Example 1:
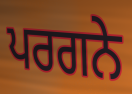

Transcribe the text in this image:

ਪਰਗਨੇ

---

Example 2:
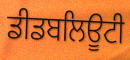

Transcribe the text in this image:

ਡੀਡਬਲਿਊਟੀ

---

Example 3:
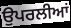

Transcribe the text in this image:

ਉਪਰਲੀਆਂ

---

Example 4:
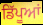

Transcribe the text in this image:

ਡਿੱਪੂਆਂ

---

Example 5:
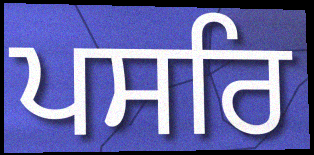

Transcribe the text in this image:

ਪਸਰਿ